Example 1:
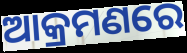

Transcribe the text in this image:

ଆକ୍ରମଣରେ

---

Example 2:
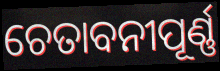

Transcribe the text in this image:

ଚେତାବନୀପୂର୍ଣ୍ଣ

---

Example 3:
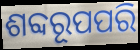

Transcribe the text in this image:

ଶବ୍ଦରୂପପରି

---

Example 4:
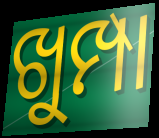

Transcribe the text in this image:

ଖୁମ୍ପା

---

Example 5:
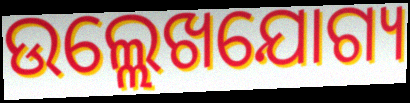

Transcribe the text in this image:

ଉଲ୍ଲେଖଯୋଗ୍ୟ